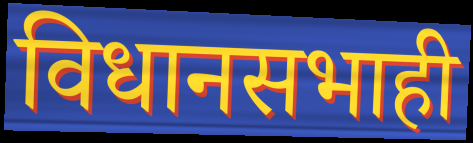
विधानसभाही